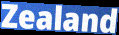
Zealand